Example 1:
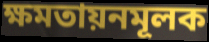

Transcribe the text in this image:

ক্ষমতায়নমূলক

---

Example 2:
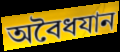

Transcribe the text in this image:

অবৈধযান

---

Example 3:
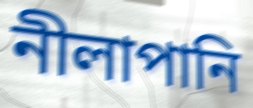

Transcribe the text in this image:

নীলাপানি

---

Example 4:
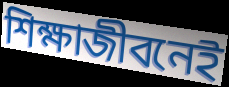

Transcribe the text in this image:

শিক্ষাজীবনেই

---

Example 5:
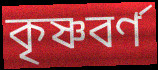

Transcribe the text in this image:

কৃষ্ণবর্ণ